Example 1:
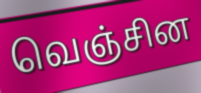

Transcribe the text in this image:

வெஞ்சின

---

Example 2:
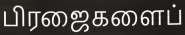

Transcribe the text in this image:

பிரஜைகளைப்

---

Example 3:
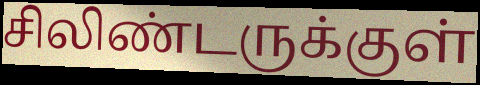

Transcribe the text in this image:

சிலிண்டருக்குள்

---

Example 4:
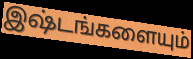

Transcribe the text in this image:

இஷ்டங்களையும்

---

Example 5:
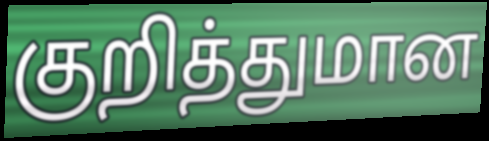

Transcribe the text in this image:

குறித்துமான